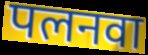
पलनवा